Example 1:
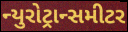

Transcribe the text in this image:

ન્યુરોટ્રાન્સમીટર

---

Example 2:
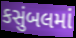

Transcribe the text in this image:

કસુંબલમાં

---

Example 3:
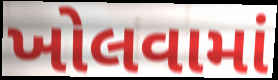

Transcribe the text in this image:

ખોલવામાં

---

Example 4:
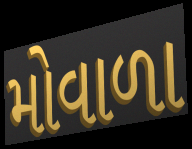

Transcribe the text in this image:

મોવાળા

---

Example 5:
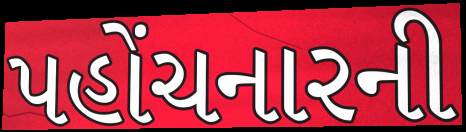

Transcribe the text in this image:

પહોંચનારની